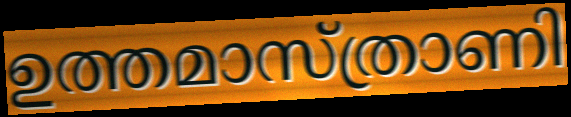
ഉത്തമാസ്ത്രാണി